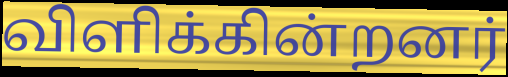
விளிக்கின்றனர்